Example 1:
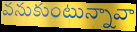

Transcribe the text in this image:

వనుకుంటున్నావా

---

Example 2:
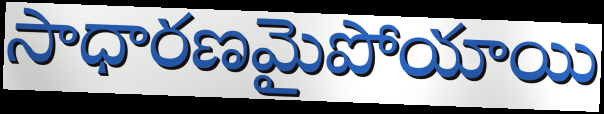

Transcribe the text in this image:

సాధారణమైపోయాయి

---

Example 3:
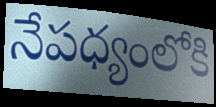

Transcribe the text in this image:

నేపధ్యంలోకి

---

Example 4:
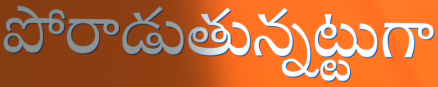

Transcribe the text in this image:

పోరాడుతున్నట్టుగా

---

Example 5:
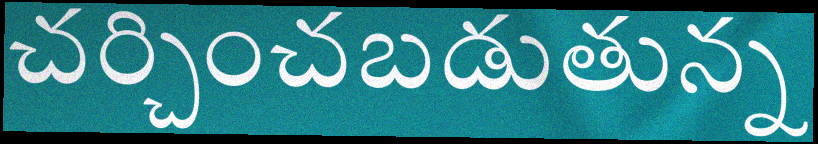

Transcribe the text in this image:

చర్చించబడుతున్న